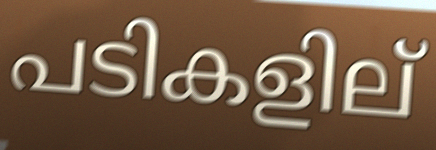
പടികളില്